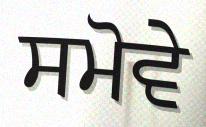
ਸਮੋਵੇ